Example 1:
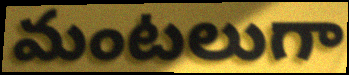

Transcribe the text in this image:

మంటలుగా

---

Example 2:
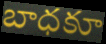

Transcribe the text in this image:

బాధకూ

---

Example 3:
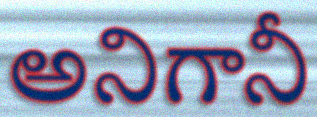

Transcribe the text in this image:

అనిగానీ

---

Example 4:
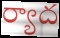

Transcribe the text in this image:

ర్యాద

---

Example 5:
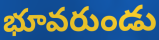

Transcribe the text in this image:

భూవరుండు